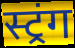
स्ट्रंग